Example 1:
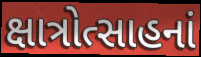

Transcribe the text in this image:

ક્ષાત્રોત્સાહનાં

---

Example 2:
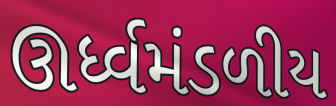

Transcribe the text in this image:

ઊર્ધ્વમંડળીય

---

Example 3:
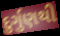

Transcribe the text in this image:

દુર્ગુણથી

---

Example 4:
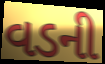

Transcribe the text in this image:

વડની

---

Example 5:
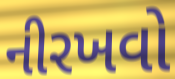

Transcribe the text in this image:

નીરખવો